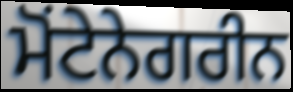
ਮੋਂਟੇਨੇਗਰੀਨ